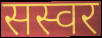
सस्वर